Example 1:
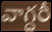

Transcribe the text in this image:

వాగ్దరీ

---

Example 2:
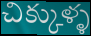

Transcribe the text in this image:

చిక్కుళ్ళ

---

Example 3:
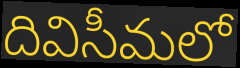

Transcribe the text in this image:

దివిసీమలో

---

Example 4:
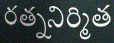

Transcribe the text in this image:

రత్ననిర్మిత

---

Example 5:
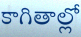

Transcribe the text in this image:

కాగితాల్లో